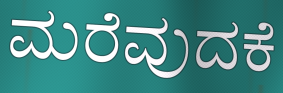
ಮರೆವುದಕೆ